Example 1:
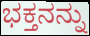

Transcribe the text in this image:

ಭಕ್ತನನ್ನು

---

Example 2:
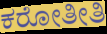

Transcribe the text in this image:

ಕರೋತೀತಿ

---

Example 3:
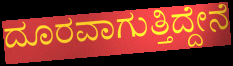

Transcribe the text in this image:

ದೂರವಾಗುತ್ತಿದ್ದೇನೆ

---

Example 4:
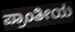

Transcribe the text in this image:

ಪ್ರಾಂತೀಯ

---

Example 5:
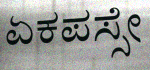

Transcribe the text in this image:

ಏಕಪಸ್ಸೇ